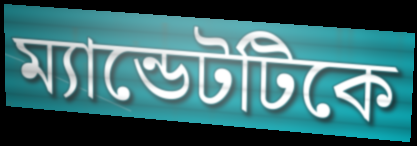
ম্যান্ডেটটিকে